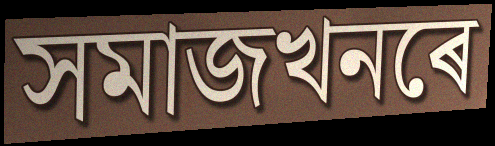
সমাজখনৰে